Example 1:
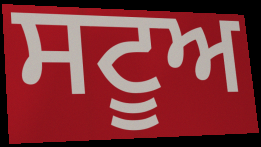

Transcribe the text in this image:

ਸਟੂਅ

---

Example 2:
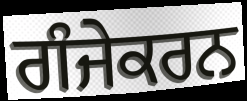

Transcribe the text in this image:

ਗੰਜੇਕਰਨ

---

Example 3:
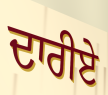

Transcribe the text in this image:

ਦਾਰੀਏ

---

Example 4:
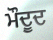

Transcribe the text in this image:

ਮੌਦੂਦ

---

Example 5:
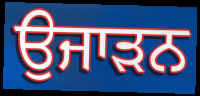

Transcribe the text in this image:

ਉਜਾੜਨ